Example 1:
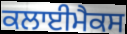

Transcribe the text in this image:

ਕਲਾਈਮੈਕਸ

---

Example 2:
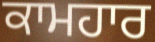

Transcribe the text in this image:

ਕਾਮਹਾਰ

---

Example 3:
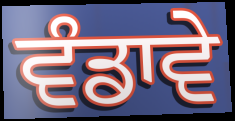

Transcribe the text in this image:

ਵੰਡਾਵੇ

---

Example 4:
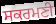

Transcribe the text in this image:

ਸਕਰਮਣੀ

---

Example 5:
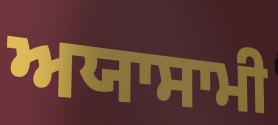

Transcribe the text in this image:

ਅਯਾਸਾਮੀ